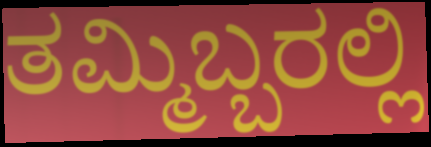
ತಮ್ಮಿಬ್ಬರಲ್ಲಿ